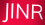
JINR